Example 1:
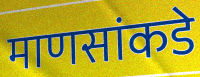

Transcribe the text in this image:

माणसांकडे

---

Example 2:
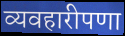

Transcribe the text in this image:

व्यवहारीपणा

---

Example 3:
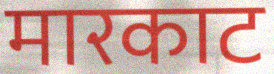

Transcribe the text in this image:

मारकाट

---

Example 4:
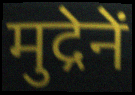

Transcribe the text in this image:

मुद्रेनें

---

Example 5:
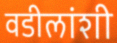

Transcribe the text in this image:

वडीलांशी